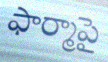
ఫార్మాపై